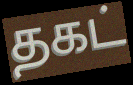
தகட்